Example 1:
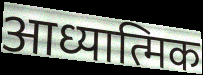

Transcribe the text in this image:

आध्यात्मिक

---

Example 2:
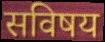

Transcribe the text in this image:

सविषय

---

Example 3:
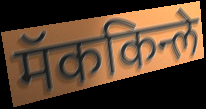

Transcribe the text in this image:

मॅककिन्ले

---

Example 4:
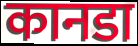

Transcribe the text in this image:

कानडा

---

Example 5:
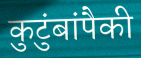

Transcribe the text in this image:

कुटुंबांपैकी